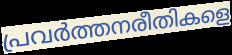
പ്രവർത്തനരീതികളെ